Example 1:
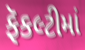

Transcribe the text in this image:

ફૅકલ્ટીમાં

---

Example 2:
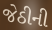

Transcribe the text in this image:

જેઠીની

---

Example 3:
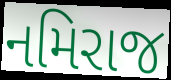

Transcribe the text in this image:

નમિરાજ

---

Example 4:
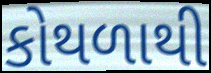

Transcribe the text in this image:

કોથળાથી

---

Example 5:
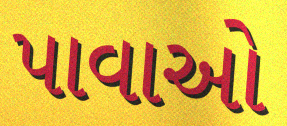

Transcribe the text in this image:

પાવાઓ